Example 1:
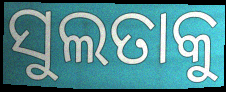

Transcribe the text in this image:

ସୁଲତାକୁ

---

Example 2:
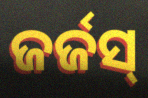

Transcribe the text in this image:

ଜର୍ଜସ୍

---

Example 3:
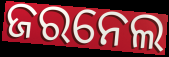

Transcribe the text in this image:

ଜରନେଲ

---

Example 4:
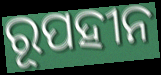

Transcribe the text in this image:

ରୂପହୀନ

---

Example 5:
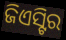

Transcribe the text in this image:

ଜିଏସ୍ଟିର